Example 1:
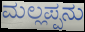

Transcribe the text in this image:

ಮಲ್ಲಪ್ಪನು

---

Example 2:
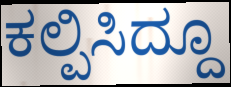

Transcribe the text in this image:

ಕಲ್ಪಿಸಿದ್ದೂ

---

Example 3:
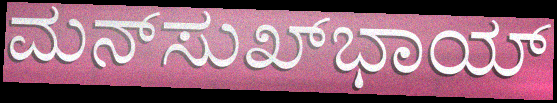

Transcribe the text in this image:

ಮನ್‌ಸುಖ್‌ಭಾಯ್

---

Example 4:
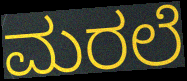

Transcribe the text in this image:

ಮರಲೆ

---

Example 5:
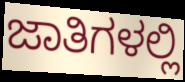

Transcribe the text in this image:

ಜಾತಿಗಳಲ್ಲಿ